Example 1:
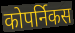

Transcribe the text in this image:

कोपर्निकस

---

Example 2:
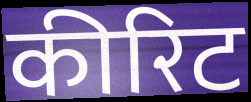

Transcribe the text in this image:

कीरिट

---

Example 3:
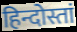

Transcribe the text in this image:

हिन्दोस्तां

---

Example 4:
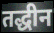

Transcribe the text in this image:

तद्धीन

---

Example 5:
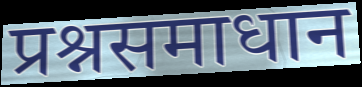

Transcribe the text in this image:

प्रश्नसमाधान